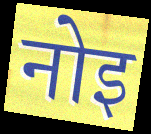
नोइ